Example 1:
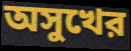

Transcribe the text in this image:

অসুখের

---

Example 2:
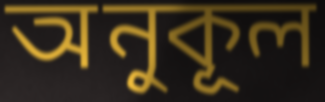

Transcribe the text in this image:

অনুকূল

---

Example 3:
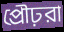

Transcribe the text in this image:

প্রৌঢ়রা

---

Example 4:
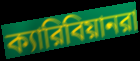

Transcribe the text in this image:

ক্যারিবিয়ানরা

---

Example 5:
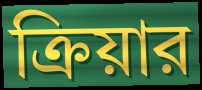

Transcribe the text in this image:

ক্রিয়ার